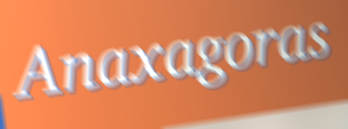
Anaxagoras